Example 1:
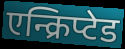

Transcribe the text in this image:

एन्क्रिप्टेड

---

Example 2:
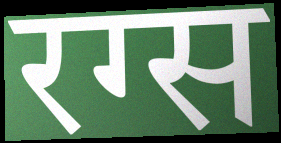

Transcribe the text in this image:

रग्स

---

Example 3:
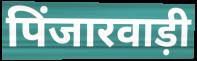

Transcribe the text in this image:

पिंजारवाड़ी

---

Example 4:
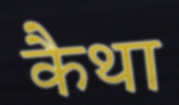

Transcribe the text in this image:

कैथा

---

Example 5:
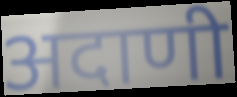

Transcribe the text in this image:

अदाणी